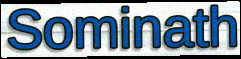
Sominath